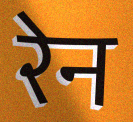
रेन